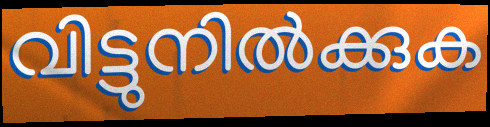
വിട്ടുനിൽക്കുക